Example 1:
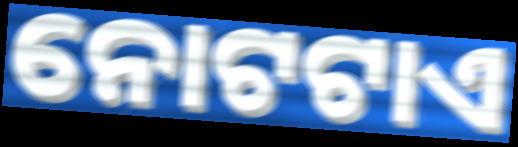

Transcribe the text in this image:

ନୋଟଟାଏ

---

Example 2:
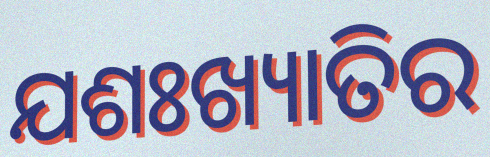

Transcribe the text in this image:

ଯଶଃଖ୍ୟାତିର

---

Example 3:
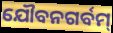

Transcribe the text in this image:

ଯୌବନଗର୍ବମ୍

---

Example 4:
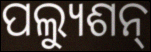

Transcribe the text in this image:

ପଲ୍ୟୁଶନ୍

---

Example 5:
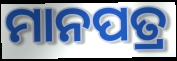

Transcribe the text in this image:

ମାନପତ୍ର